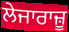
ਲੇਜਾਰਾਜ਼ੂ